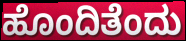
ಹೊಂದಿತೆಂದು